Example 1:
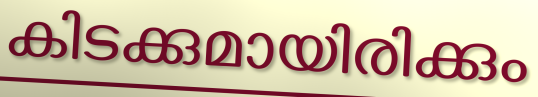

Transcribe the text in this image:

കിടക്കുമായിരിക്കും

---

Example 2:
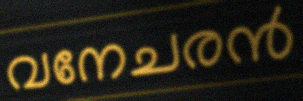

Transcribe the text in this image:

വനേചരൻ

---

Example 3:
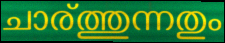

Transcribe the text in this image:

ചാര്ത്തുന്നതും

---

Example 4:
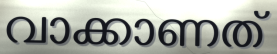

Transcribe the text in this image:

വാക്കാണത്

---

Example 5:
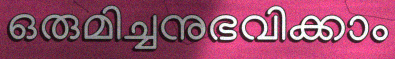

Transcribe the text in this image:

ഒരുമിച്ചനുഭവിക്കാം